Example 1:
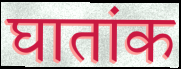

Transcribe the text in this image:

घातांक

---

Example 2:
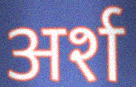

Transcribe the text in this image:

अर्श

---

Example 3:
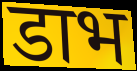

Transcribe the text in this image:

डाभ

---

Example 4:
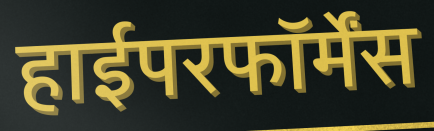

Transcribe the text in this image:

हाईपरफॉर्मेंस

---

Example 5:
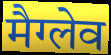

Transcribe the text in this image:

मैग्लेव